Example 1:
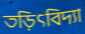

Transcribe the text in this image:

তড়িৎবিদ্যা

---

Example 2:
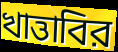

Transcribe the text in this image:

খাত্তাবির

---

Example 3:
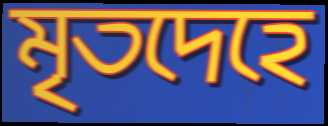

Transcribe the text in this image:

মৃতদেহে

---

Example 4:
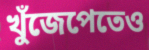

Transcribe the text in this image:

খুঁজেপেতেও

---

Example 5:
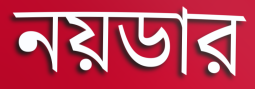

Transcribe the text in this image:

নয়ডার